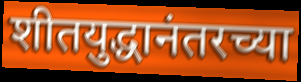
शीतयुद्धानंतरच्या